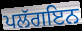
ਪਲੱਗਇਨ